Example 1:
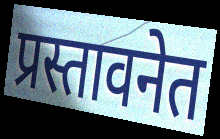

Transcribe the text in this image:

प्रस्तावनेत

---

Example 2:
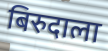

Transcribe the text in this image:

बिरुदाला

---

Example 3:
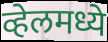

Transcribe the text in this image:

व्हेलमध्ये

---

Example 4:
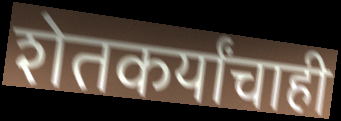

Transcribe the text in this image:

शेतकर्यांचाही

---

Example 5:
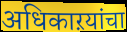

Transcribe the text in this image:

अधिकाऱयांचा